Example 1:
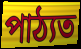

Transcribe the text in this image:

পাঠ্যত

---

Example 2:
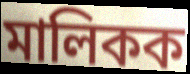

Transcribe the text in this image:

মালিকক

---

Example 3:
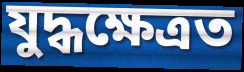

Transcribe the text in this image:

যুদ্ধক্ষেত্ৰত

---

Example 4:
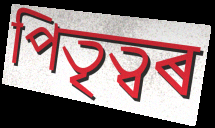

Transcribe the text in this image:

পিতৃত্বৰ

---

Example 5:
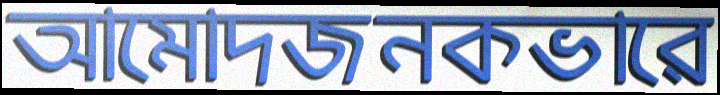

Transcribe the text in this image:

আমোদজনকভাৱে